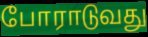
போராடுவது